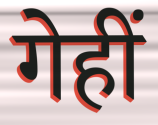
गेहीं